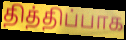
தித்திப்பாக